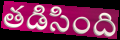
తడిసింది